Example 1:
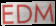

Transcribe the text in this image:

EDM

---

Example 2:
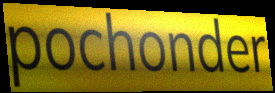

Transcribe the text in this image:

pochonder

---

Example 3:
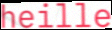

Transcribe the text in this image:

heille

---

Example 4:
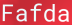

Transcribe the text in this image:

Fafda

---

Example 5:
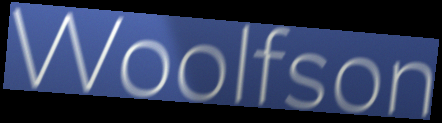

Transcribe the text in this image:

Woolfson